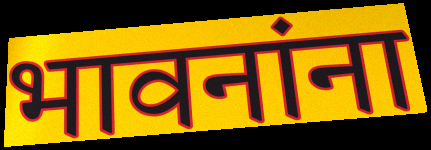
भावनांना